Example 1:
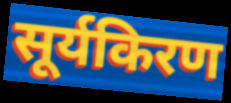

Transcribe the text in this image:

सूर्यकिरण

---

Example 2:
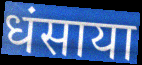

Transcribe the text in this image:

धंसाया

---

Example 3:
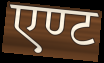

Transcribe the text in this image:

एण्ट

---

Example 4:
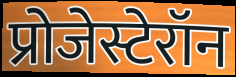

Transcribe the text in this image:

प्रोजेस्टेरॉन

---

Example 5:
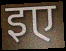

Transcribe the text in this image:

इए